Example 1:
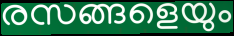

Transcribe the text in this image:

രസങ്ങളെയും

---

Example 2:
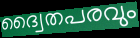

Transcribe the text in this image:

ദ്വൈതപരവും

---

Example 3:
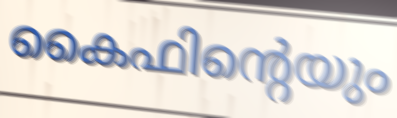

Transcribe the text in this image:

കൈഫിന്റെയും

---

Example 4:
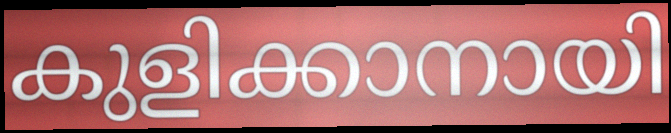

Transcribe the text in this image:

കുളിക്കാനായി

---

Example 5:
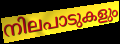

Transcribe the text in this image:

നിലപാടുകളും